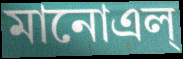
মানোএল্